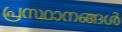
പ്രസ്ഥാനങ്ങൾ